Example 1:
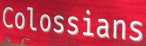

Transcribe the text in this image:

Colossians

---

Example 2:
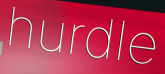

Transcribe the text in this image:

hurdle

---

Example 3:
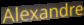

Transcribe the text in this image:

Alexandre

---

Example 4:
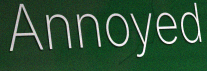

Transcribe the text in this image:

Annoyed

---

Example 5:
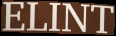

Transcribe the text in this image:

ELINT